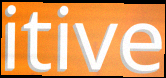
itive